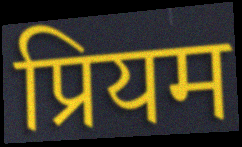
प्रियम